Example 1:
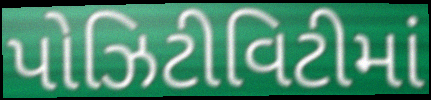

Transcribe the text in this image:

પોઝિટીવિટીમાં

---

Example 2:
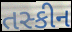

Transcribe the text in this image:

તસ્કીન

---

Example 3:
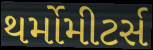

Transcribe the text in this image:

થર્મોમીટર્સ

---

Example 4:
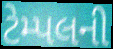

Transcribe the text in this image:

ટેમ્પલની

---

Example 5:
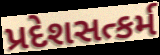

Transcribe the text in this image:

પ્રદેશસત્કર્મ